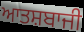
ਆਤਸ਼ਬਾਜੀ